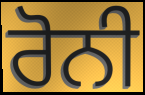
ਰੋਨੀ